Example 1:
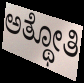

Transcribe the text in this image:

ಅತ್ಥೋತಿ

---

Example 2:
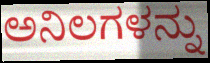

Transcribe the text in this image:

ಅನಿಲಗಳನ್ನು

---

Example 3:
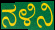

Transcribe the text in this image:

ನಳಿನಿ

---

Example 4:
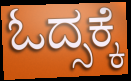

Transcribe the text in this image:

ಓದ್ಸಕ್ಕೆ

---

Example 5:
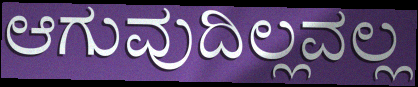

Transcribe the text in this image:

ಆಗುವುದಿಲ್ಲವಲ್ಲ